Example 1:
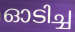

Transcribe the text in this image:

ഓടിച്ച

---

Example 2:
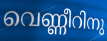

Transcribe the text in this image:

വെണ്ണീറിനു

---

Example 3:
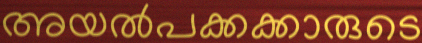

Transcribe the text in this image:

അയൽപക്കക്കാരുടെ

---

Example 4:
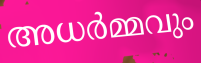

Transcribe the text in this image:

അധർമ്മവും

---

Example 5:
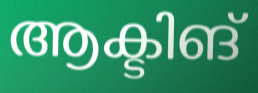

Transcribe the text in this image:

ആക്ടിങ്